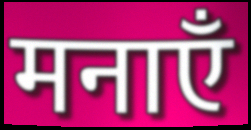
मनाएँ